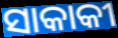
ସାକାକୀ